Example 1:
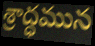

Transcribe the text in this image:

శ్రాద్ధమున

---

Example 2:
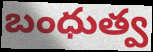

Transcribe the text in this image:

బంధుత్వ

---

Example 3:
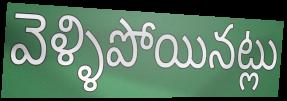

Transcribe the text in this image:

వెళ్ళిపోయినట్లు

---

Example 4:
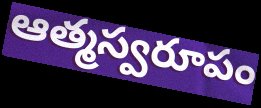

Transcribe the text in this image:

ఆత్మస్వరూపం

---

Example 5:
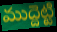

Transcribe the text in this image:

ముద్దెట్టి